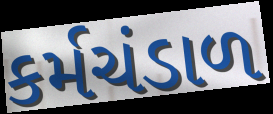
કર્મચંડાળ